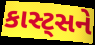
કાસ્ટ્સને